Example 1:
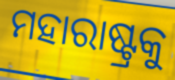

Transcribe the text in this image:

ମହାରାଷ୍ଟ୍ରକୁ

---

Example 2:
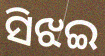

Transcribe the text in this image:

ସିଝଇ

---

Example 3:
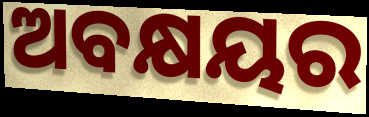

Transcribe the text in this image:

ଅବକ୍ଷୟର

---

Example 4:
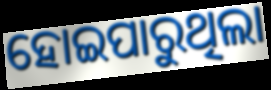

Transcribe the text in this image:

ହୋଇପାରୁଥିଲା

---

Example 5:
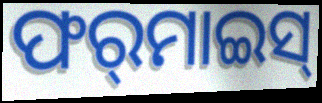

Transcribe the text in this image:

ଫର୍‌ମାଇସ୍